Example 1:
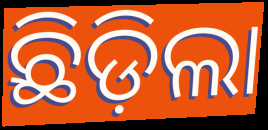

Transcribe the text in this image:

ଛିଡ଼ିଲା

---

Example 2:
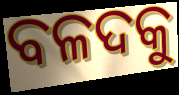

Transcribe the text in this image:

ବଳଦକୁ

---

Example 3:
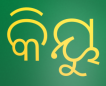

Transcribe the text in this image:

କିୟୁ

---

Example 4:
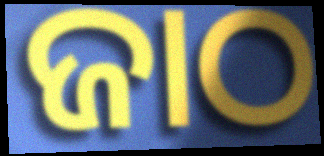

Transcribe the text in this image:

ଜାଠ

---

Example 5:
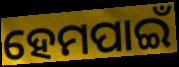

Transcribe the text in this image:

ହେମପାଇଁ